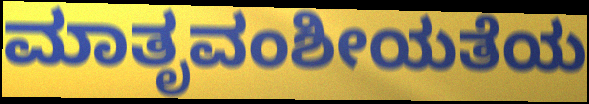
ಮಾತೃವಂಶೀಯತೆಯ